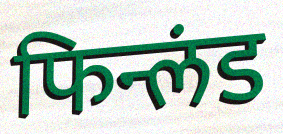
फिन्लंड